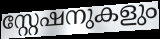
സ്റ്റേഷനുകളും